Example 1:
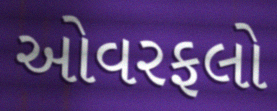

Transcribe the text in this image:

ઓવરફલો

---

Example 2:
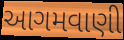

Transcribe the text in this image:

આગમવાણી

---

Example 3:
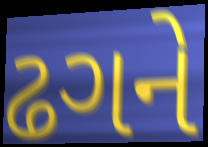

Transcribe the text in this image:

ઢગને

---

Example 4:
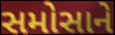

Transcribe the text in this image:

સમોસાને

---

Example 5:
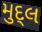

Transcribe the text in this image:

મુદ્લ